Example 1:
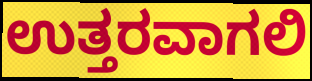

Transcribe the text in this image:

ಉತ್ತರವಾಗಲಿ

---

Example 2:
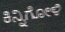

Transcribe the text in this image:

ಕಿನ್ನಿಗೋಳಿ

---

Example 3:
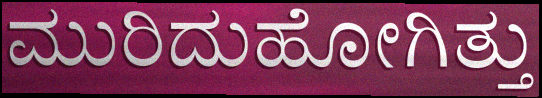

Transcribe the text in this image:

ಮುರಿದುಹೋಗಿತ್ತು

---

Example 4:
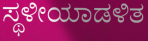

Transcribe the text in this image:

ಸ್ಥಳೀಯಾಡಳಿತ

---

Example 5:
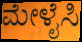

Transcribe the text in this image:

ಮೇಳೈಸಿ